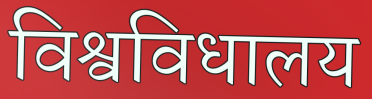
विश्वविधालय